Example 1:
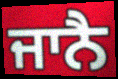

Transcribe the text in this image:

ਜਾਨੈ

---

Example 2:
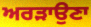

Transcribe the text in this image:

ਅਰੜਾਉਣਾ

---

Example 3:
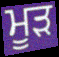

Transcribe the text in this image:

ਮੂੜ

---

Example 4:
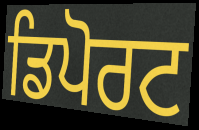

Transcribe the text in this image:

ਡਿਪੋਰਟ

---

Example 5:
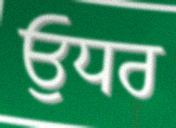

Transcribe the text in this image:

ਓੁਧਰ